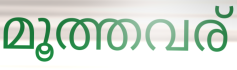
മൂത്തവര്